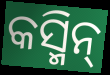
କସ୍ମିନ୍